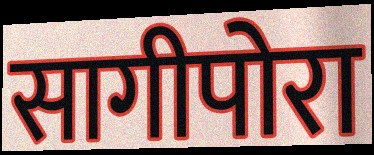
सागीपोरा